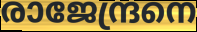
രാജേന്ദ്രനെ